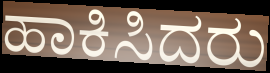
ಹಾಕಿಸಿದರು